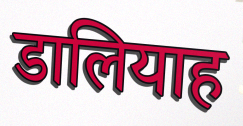
डालियाह